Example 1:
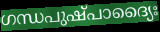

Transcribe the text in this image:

ഗന്ധപുഷ്പാദ്യൈഃ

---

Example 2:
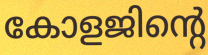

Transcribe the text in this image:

കോളജിന്റെ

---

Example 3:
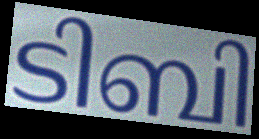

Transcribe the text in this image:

ടിബി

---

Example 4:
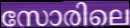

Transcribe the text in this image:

സോരിലെ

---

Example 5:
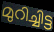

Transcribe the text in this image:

മുറിച്ചിട്ട